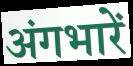
अंगभारें